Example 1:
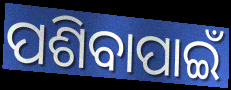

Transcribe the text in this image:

ପଶିବାପାଇଁ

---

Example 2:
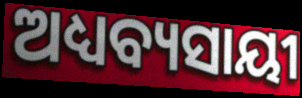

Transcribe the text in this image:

ଅଧ୍ୟବ୍ୟସାୟୀ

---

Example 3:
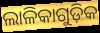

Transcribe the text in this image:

ଲାଳିକାଗୁଡ଼ିକ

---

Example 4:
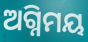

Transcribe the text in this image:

ଅଗ୍ନିମୟ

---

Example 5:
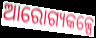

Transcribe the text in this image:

ଆରୋଗ୍ୟକଳ୍ପେ